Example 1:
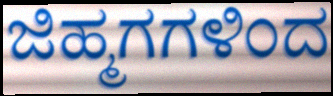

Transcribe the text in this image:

ಜಿಹ್ಮಗಗಳಿಂದ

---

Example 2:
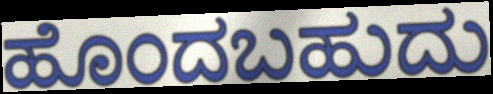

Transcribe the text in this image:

ಹೊಂದಬಹುದು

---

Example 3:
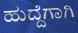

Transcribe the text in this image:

ಹುದ್ದೆಗಾಗಿ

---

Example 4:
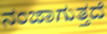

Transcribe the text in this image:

ನಂಜಾಗುತ್ತದೆ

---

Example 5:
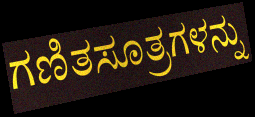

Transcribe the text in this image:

ಗಣಿತಸೂತ್ರಗಳನ್ನು